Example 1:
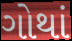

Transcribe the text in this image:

ગોથાં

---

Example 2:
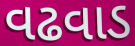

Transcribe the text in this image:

વઢવાડ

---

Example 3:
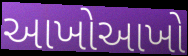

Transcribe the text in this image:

આખોઆખો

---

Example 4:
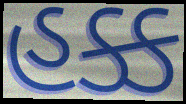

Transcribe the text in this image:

હક્ક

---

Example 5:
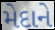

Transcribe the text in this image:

મેદાને